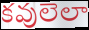
కవులెలా